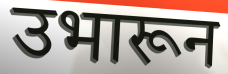
उभारून